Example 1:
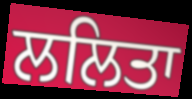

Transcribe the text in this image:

ਲਲਿਤਾ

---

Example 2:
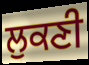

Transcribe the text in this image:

ਲੁਕਣੀ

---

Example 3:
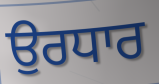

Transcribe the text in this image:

ਉਰਧਾਰ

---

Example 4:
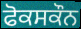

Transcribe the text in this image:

ਫੋਕਸਕੌਨ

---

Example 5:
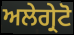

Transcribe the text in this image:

ਅਲੇਗ੍ਰੇਟੋ